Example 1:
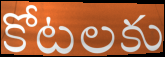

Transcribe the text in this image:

కోటలకు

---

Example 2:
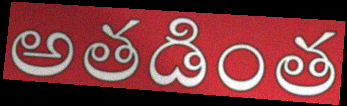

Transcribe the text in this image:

అతడింత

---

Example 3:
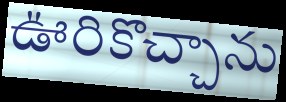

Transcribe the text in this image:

ఊరికొచ్చాను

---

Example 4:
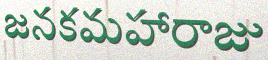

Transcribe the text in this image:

జనకమహారాజు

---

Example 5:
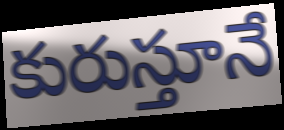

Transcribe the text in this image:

కురుస్తూనే